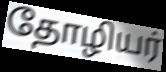
தோழியர்